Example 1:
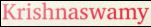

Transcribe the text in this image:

Krishnaswamy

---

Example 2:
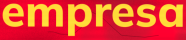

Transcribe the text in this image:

empresa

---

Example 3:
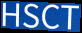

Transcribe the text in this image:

HSCT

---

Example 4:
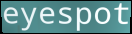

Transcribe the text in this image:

eyespot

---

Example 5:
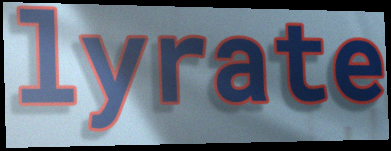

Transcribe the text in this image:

lyrate